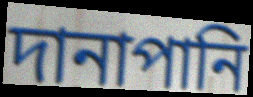
দানাপানি